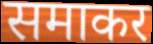
समाकर